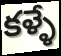
కళ్ళే